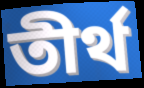
তীৰ্থ